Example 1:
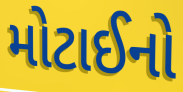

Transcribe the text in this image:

મોટાઈનો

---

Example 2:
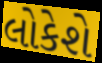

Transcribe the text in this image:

લોકેશે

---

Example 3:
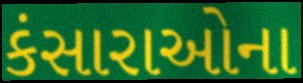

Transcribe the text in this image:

કંસારાઓના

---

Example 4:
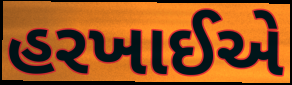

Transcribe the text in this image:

હરખાઈએ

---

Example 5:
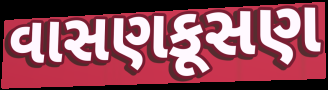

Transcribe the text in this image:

વાસણકૂસણ